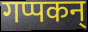
गप्पकन्